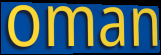
oman